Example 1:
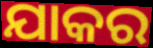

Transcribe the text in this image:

ଯାକର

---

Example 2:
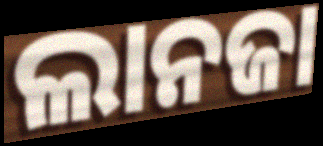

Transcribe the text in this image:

ଲାନଜା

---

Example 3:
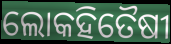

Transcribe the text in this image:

ଲୋକହିତୈଷୀ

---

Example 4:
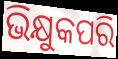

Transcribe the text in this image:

ଭିକ୍ଷୁକପରି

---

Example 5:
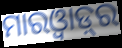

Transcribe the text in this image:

ମାରଓ୍ୱାଡ଼୍‌ର